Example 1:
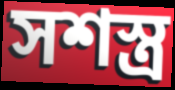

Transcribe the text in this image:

সশস্ত্ৰ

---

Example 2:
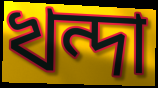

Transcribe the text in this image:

খন্দা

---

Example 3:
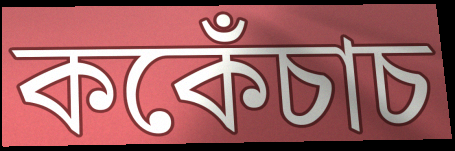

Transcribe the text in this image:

ককেঁচাচ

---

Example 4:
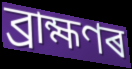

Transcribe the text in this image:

ব্ৰাহ্মণৰ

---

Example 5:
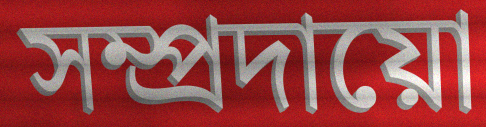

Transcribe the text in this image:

সম্প্ৰদায়ো